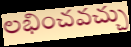
లభించవచ్చు